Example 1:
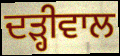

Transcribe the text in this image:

ਦੜ੍ਹੀਵਾਲ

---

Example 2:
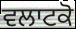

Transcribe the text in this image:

ਵਲਾਟਕੋ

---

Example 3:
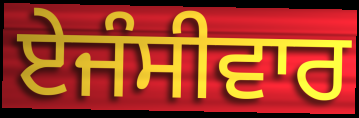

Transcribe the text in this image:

ਏਜੰਸੀਵਾਰ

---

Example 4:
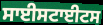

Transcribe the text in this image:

ਸਾਈਸਟਾਈਟਸ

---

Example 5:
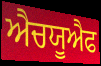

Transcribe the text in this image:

ਐਚਯੂਐਫ